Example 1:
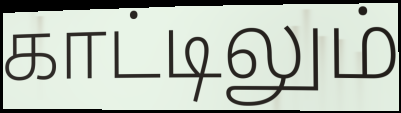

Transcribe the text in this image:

காட்டிலும்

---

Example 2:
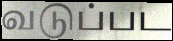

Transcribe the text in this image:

வடுப்பட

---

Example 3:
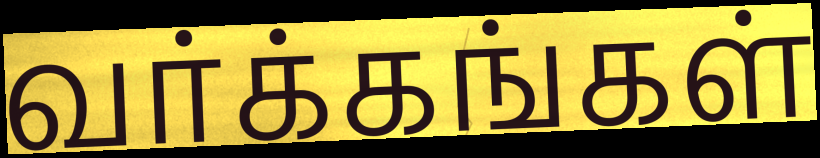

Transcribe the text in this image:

வர்க்கங்கள்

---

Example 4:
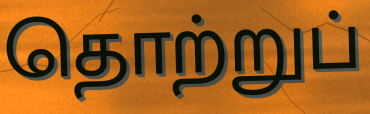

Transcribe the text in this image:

தொற்றுப்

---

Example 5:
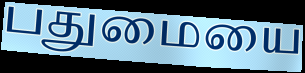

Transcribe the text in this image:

பதுமையை